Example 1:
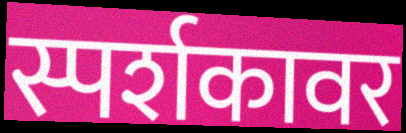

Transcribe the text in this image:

स्पर्शकावर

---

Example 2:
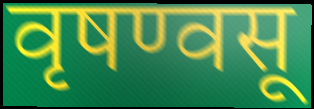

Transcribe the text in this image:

वृषण्वसू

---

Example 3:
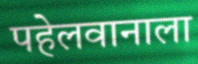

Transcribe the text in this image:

पहेलवानाला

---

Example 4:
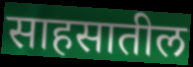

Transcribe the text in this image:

साहसातील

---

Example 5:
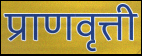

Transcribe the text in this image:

प्राणवृत्ती